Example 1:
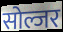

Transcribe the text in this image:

सोल्जर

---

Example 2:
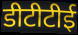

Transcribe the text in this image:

डीटीटीई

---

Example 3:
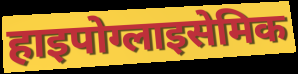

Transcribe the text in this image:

हाइपोग्लाइसेमिक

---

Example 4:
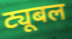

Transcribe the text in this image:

ट्यूबल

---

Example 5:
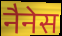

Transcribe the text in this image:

नैनेस